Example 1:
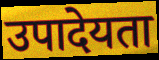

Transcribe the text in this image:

उपादेयता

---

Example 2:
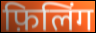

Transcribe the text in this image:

फ़िलिंग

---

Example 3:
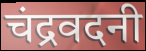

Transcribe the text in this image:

चंद्रवदनी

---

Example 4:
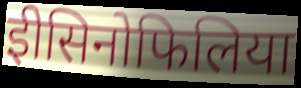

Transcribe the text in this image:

ईोसिनोफिलिया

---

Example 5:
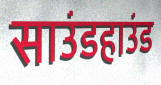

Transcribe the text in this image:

साउंडहाउंड